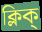
ক্লিক্